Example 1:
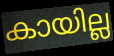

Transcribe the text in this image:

കായില്ല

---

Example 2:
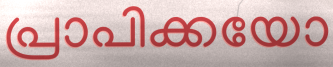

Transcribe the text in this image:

പ്രാപിക്കയോ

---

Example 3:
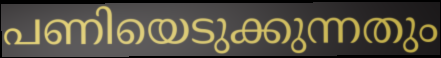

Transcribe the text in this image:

പണിയെടുക്കുന്നതും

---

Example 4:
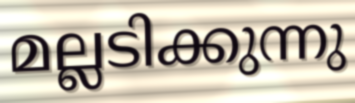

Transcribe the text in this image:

മല്ലടിക്കുന്നു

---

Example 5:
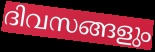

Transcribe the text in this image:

ദിവസങ്ങളും